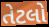
તેટલો